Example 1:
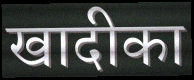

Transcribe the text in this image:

खादीका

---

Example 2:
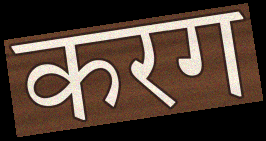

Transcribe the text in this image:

करग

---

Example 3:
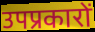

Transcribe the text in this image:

उपप्रकारों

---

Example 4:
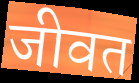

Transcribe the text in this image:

जीवत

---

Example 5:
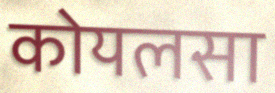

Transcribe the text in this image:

कोयलसा